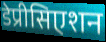
डेप्रीसिएशन